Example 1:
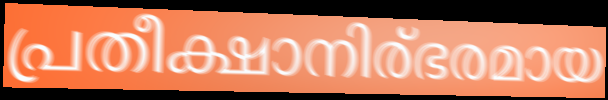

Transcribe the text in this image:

പ്രതീക്ഷാനിര്ഭരമായ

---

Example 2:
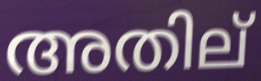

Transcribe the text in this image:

അതില്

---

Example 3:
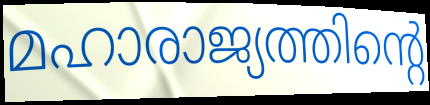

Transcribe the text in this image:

മഹാരാജ്യത്തിന്റെ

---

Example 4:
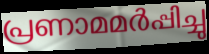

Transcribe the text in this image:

പ്രണാമമർപ്പിച്ചു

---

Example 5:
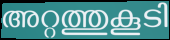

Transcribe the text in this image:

അറ്റത്തുകൂടി